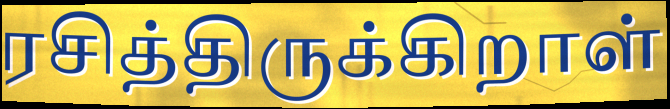
ரசித்திருக்கிறாள்